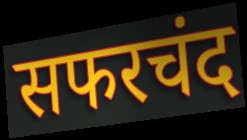
सफरचंद